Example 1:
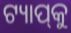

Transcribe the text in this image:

ଟ୍ୟାପ୍‌କୁ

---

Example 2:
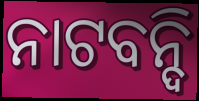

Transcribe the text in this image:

ନାଟବନ୍ଦି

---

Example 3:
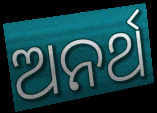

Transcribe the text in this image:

ଅନର୍ଥ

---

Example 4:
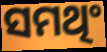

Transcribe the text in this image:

ସମଥିଂ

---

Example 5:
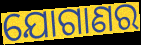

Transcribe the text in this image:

ଯୋଗାଣର